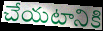
చేయటానికి